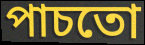
পাচতো